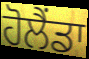
ਹੋਲੈਂਡਾ